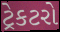
ટ્રેકટરો